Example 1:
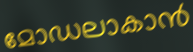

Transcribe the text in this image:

മോഡലാകാൻ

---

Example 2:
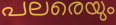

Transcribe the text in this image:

പലരെയും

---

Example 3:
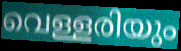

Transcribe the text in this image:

വെള്ളരിയും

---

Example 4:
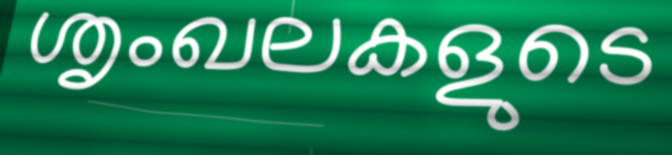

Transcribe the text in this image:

ശൃംഖലകളുടെ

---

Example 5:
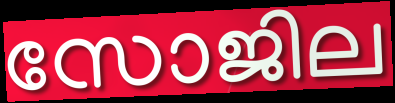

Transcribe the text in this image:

സോജില